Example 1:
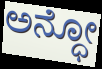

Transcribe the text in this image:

ಅನ್ಧೋ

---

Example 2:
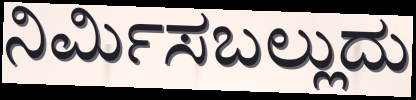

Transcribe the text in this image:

ನಿರ್ಮಿಸಬಲ್ಲುದು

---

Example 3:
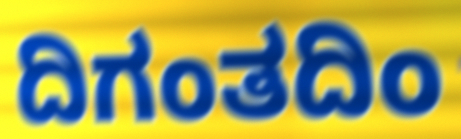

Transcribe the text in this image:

ದಿಗಂತದಿಂ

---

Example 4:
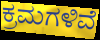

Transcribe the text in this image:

ಕ್ರಮಗಳಿವೆ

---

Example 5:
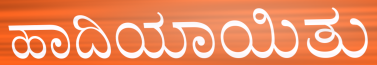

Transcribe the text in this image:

ಹಾದಿಯಾಯಿತು